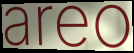
areo